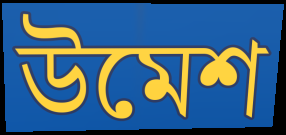
উমেশ